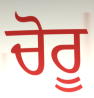
ਚੋਰੂ